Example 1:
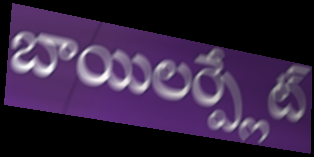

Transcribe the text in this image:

బాయిలర్ప్లేట్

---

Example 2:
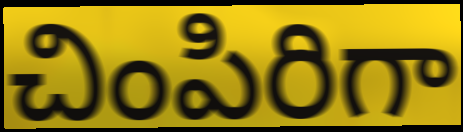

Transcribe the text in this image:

చింపిరిగా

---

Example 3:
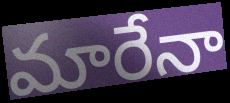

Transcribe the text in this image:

మారేనా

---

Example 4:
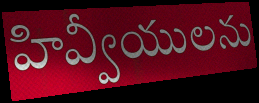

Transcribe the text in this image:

హివ్వీయులను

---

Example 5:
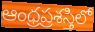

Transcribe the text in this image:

ఆంధ్రప్రశస్తిలో